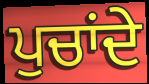
ਪੁਚਾਂਦੇ